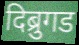
दिब्रुगड